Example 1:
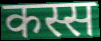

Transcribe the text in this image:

कस्स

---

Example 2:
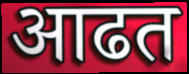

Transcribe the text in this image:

आढत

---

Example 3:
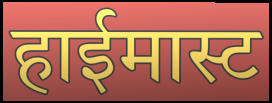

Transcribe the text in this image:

हाईमास्ट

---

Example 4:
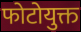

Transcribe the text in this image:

फोटोयुक्त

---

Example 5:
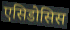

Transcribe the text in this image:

एसिडोसिस